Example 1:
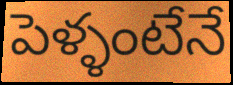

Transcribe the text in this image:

పెళ్ళంటేనే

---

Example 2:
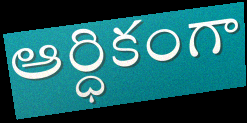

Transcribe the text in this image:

ఆర్ధికంగా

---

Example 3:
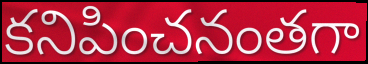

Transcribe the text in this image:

కనిపించనంతగా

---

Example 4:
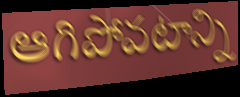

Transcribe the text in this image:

ఆగిపోవటాన్ని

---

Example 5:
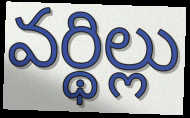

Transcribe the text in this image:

వర్థిల్లు